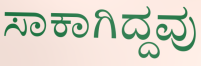
ಸಾಕಾಗಿದ್ದವು